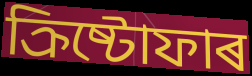
ক্ৰিষ্টোফাৰ